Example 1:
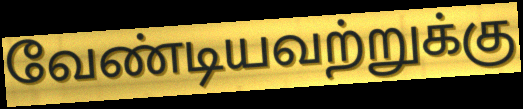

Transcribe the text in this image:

வேண்டியவற்றுக்கு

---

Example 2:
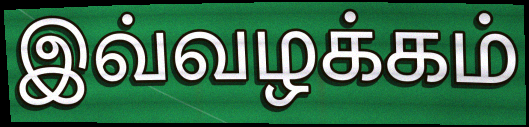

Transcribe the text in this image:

இவ்வழக்கம்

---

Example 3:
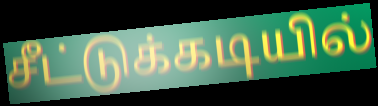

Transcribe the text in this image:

சீட்டுக்கடியில்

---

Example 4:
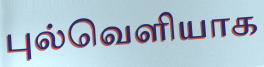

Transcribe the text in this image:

புல்வெளியாக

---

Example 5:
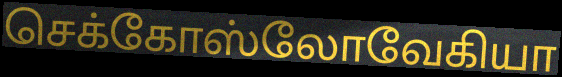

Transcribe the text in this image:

செக்கோஸ்லோவேகியா